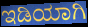
ಇಡಿಯಾಗಿ